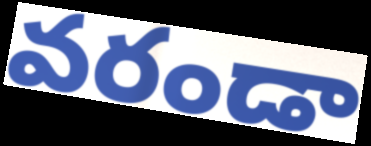
వరండా